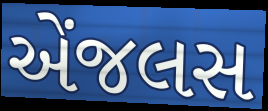
એંજલસ